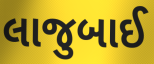
લાજુબાઈ